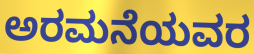
ಅರಮನೆಯವರ